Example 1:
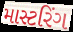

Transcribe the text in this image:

માસ્ટરિંગ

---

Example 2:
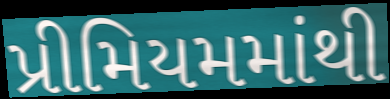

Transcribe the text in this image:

પ્રીમિયમમાંથી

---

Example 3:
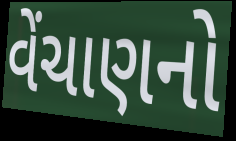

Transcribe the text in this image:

વેંચાણનો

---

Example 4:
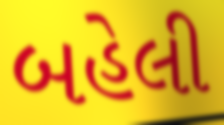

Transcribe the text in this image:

બહેલી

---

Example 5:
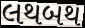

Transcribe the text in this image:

લથબથ